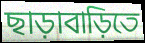
ছাড়াবাড়িতে